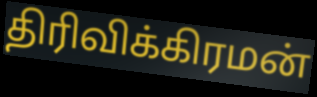
திரிவிக்கிரமன்